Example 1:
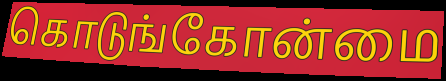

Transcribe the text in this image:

கொடுங்கோன்மை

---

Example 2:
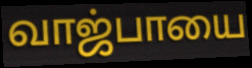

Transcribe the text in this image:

வாஜ்பாயை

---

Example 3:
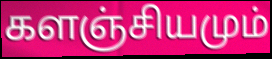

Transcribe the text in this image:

களஞ்சியமும்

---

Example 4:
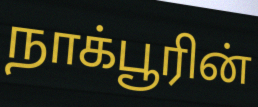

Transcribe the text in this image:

நாக்பூரின்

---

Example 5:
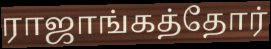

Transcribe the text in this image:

ராஜாங்கத்தோர்